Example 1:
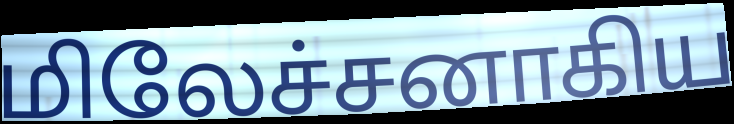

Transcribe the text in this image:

மிலேச்சனாகிய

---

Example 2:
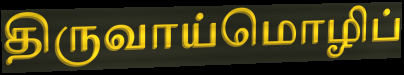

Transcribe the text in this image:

திருவாய்மொழிப்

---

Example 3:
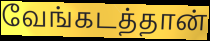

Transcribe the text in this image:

வேங்கடத்தான்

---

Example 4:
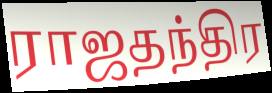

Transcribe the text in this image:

ராஜதந்திர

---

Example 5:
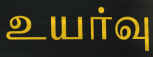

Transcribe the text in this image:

உயர்வு